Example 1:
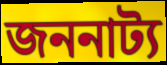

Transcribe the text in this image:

জননাট্য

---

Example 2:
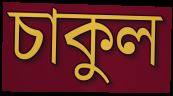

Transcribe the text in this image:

চাকুল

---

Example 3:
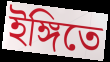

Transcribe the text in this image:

ইঙ্গিতে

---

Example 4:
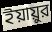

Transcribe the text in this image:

ইয়ায়ুর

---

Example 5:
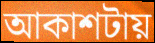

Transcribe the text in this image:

আকাশটায়